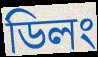
ডিলং